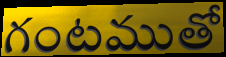
గంటముతో